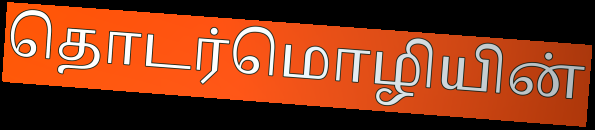
தொடர்மொழியின்